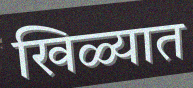
खिळ्यात